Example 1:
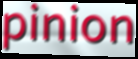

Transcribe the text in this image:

pinion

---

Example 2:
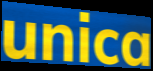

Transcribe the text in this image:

unica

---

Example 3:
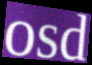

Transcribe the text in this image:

osd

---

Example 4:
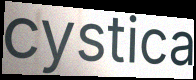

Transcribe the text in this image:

cystica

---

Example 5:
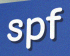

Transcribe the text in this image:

spf